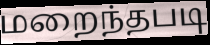
மறைந்தபடி